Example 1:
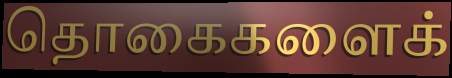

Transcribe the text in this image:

தொகைகளைக்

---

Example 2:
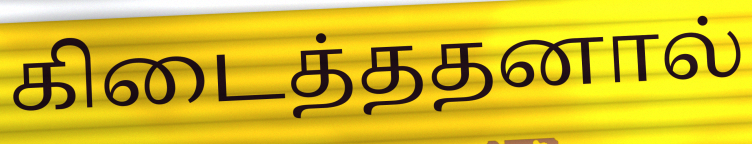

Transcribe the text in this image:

கிடைத்ததனால்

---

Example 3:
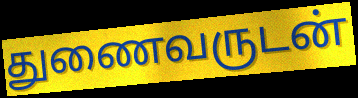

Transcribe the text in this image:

துணைவருடன்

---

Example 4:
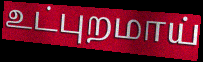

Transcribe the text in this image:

உட்புறமாய்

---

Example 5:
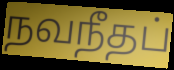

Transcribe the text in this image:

நவநீதப்